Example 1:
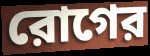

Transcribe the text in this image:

রোগের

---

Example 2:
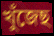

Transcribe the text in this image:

খুঁজেছ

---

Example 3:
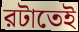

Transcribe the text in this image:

রটাতেই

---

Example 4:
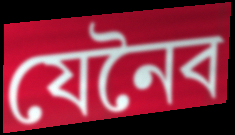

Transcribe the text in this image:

যেনৈব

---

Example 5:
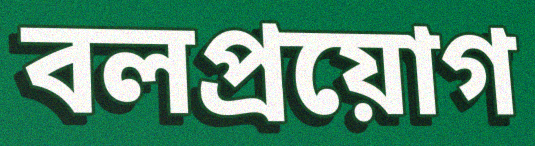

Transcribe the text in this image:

বলপ্রয়োগ